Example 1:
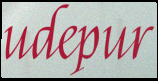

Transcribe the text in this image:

udepur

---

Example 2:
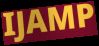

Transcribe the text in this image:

IJAMP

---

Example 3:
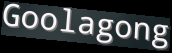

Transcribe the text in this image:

Goolagong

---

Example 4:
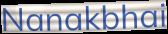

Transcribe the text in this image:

Nanakbhai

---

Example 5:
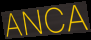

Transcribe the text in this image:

ANCA